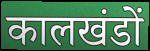
कालखंडों